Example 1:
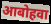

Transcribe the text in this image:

आबोहवा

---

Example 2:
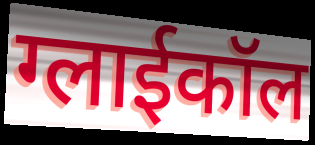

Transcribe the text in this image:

ग्लाईकॉल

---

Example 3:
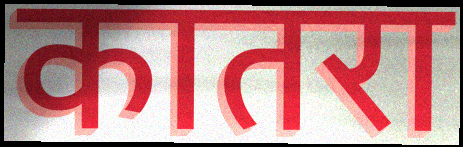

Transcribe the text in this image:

कातरा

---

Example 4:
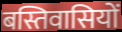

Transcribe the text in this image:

बस्तिवासियों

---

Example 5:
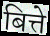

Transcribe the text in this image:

बित्ते